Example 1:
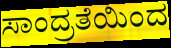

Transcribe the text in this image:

ಸಾಂದ್ರತೆಯಿಂದ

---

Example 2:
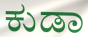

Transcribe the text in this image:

ಕುಡಾ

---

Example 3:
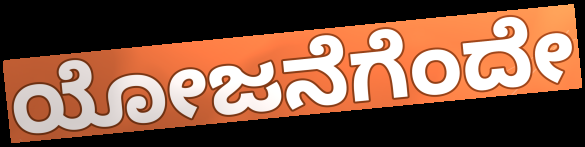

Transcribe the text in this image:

ಯೋಜನೆಗೆಂದೇ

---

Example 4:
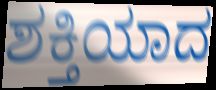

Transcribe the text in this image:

ಶಕ್ತಿಯಾದ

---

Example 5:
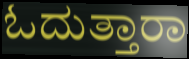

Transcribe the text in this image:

ಓದುತ್ತಾರಾ